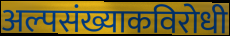
अल्पसंख्याकविरोधी